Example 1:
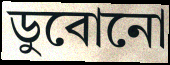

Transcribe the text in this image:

ডুবোনো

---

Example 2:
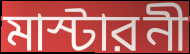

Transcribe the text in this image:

মাস্টারনী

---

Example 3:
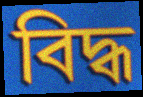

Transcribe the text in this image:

বিদ্ধ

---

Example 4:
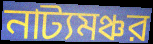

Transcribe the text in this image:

নাট্যমঞ্চর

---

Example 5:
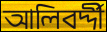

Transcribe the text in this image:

আলিবর্দ্দী